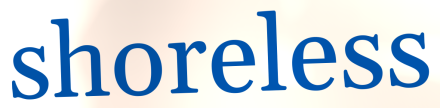
shoreless